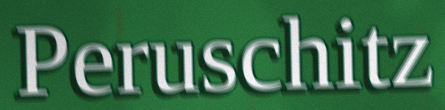
Peruschitz